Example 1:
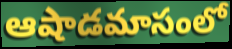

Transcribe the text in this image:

ఆషాడమాసంలో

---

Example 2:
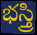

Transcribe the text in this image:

భస్త్రి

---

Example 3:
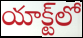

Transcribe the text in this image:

యాక్ట్‌లో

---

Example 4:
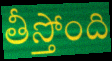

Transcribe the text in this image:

తీస్తోంది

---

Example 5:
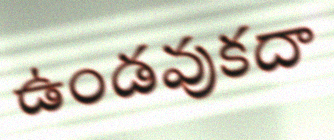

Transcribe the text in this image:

ఉండవుకదా